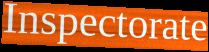
Inspectorate